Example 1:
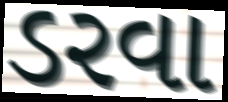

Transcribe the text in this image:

ડરવા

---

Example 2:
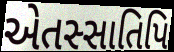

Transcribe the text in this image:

એતસ્સાતિપિ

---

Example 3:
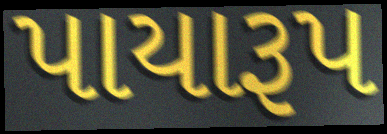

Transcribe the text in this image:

પાયારૂપ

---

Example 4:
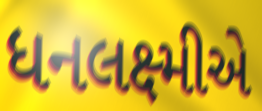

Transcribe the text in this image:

ધનલક્ષ્મીએ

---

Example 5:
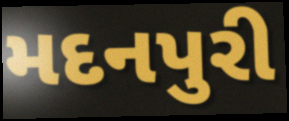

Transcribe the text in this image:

મદનપુરી